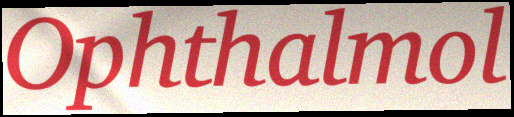
Ophthalmol